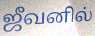
ஜீவனில்